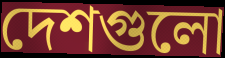
দেশগুলো